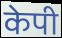
केपी